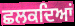
ਛਲਕਦਿਆਂ